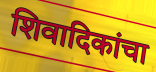
शिवादिकांचा